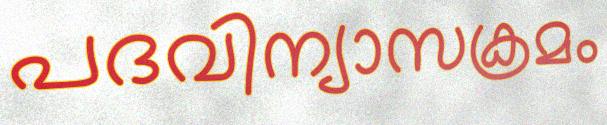
പദവിന്യാസക്രമം